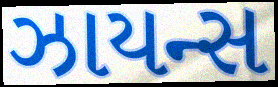
ઝાયન્સ